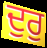
ਦੁਰੁ